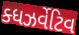
ક્ધઝર્વેટિવ